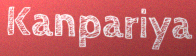
Kanpariya